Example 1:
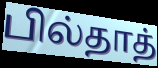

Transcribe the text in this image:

பில்தாத்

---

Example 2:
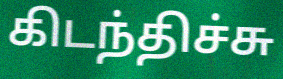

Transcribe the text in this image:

கிடந்திச்சு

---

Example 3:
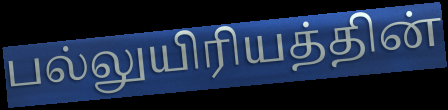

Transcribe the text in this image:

பல்லுயிரியத்தின்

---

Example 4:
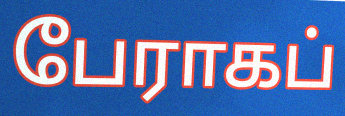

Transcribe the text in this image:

பேராகப்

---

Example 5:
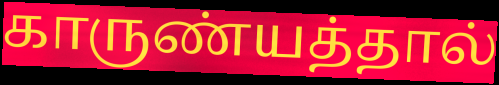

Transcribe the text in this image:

காருண்யத்தால்